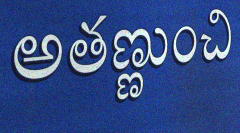
అతణ్ణుంచి